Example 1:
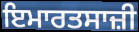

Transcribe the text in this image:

ਇਮਾਰਤਸਾਜ਼ੀ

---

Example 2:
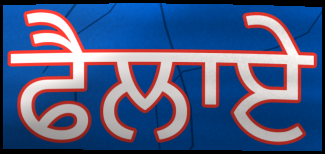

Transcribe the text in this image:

ਫੈਲਾਏ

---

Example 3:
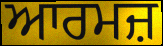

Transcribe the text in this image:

ਆਰਮਜ਼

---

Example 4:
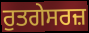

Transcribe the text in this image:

ਰੁਤਗੇਸਰਜ਼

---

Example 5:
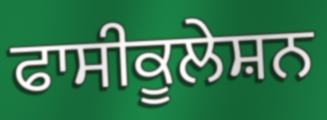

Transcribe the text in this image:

ਫਾਸੀਕੂਲੇਸ਼ਨ